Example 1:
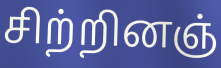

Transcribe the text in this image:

சிற்றினஞ்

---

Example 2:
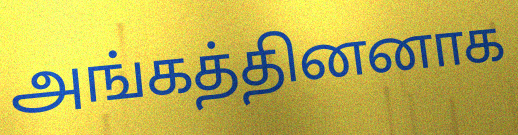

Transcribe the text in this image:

அங்கத்தினனாக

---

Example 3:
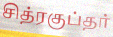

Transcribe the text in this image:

சித்ரகுப்தர்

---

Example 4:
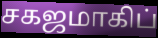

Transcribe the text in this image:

சகஜமாகிப்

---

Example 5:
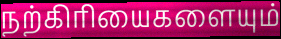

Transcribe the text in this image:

நற்கிரியைகளையும்